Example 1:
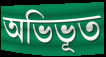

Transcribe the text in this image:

অভিভূত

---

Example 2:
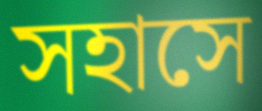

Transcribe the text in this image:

সহাসে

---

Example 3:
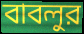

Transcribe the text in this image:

বাবলুর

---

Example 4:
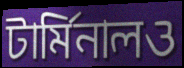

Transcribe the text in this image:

টার্মিনালও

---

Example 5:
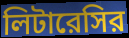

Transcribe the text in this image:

লিটারেসির